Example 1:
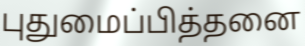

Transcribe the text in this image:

புதுமைப்பித்தனை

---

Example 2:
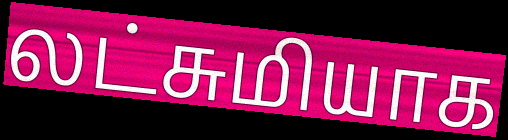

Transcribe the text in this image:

லட்சுமியாக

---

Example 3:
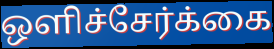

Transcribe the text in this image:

ஒளிச்சேர்க்கை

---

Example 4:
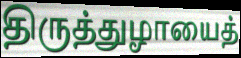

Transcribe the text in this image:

திருத்துழாயைத்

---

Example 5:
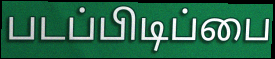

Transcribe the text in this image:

படப்பிடிப்பை